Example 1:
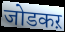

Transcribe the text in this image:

जोडकऱ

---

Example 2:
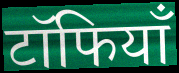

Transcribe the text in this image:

टॉफियाँ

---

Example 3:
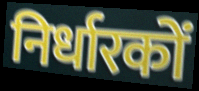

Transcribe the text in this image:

निर्धारकों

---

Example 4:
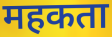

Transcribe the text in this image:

महकता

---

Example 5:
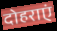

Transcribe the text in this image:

दोहराएं